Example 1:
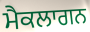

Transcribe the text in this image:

ਮੈਕਲਾਗਨ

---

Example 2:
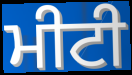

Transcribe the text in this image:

ਮੀਟੀ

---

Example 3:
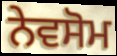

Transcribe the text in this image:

ਨੇਵਸੋਮ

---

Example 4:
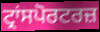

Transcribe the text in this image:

ਟ੍ਰਾਂਸਪੋਰਟਰਜ਼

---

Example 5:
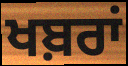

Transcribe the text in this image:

ਖਬ਼ਰਾਂ